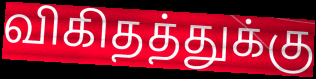
விகிதத்துக்கு